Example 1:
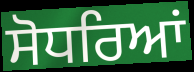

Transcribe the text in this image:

ਸੋਧਰਿਆਂ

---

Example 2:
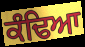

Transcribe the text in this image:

ਕੰਢਿਆ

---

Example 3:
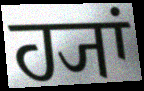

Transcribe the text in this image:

ਹ੍ਯਾਂ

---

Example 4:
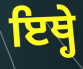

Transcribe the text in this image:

ਇਥ੍ਹੇ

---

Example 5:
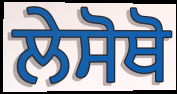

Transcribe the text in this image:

ਲੇਸੋਥੋ